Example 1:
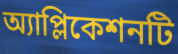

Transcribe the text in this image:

অ্যাপ্লিকেশনটি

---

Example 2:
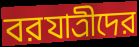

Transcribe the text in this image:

বরযাত্রীদের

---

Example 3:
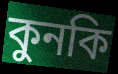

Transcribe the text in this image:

কুনকি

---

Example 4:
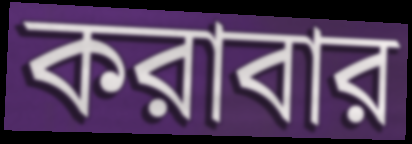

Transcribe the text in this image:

করাবার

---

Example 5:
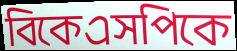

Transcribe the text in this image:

বিকেএসপিকে